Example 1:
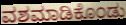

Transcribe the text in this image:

ವಶಮಾಡಿಕೊಂಡು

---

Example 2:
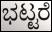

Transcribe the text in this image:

ಭಟ್ಟರೆ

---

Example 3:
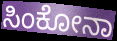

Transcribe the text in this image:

ಸಿಂಕೋನಾ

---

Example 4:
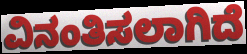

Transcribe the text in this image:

ವಿನಂತಿಸಲಾಗಿದೆ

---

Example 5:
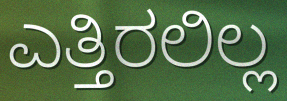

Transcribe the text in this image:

ಎತ್ತಿರಲಿಲ್ಲ